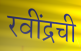
रवींद्रची